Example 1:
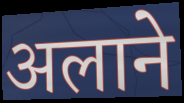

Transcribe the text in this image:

अलाने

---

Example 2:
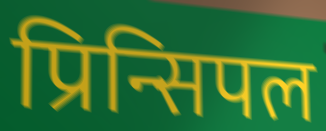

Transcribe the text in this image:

प्रिन्सिपल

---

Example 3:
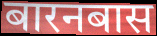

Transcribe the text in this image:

बारनबास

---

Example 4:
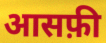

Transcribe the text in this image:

आसफ़ी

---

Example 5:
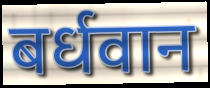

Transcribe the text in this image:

बर्धवान